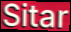
Sitar